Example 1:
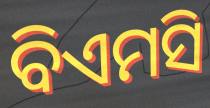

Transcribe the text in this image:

ବିଏମସି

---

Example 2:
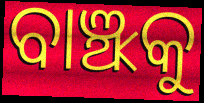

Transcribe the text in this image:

ବାଞ୍ଝକୁ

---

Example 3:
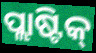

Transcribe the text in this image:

ପ୍ଲାଷ୍ଟିକ୍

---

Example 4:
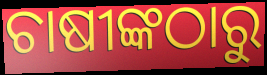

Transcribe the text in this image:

ଚାଷୀଙ୍କଠାରୁ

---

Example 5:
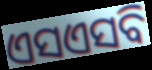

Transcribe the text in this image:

ଏସଏସବି